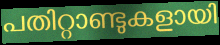
പതിറ്റാണ്ടുകളായി